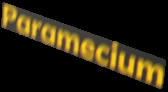
Paramecium